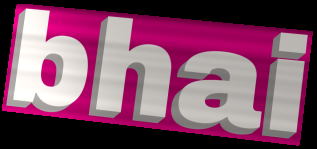
bhai